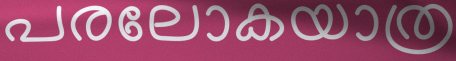
പരലോകയാത്ര